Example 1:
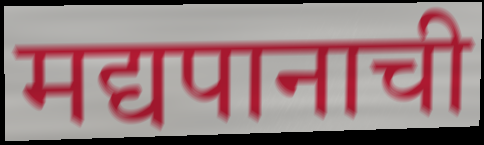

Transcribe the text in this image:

मद्यपानाची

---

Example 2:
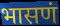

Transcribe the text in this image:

भासणं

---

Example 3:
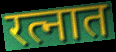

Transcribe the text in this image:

रत्नात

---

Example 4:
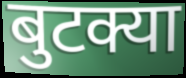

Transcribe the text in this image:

बुटक्या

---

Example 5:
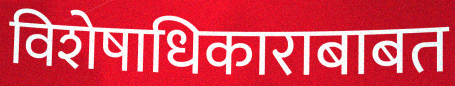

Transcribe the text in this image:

विशेषाधिकाराबाबत